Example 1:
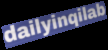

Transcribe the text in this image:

dailyinqilab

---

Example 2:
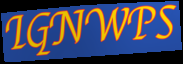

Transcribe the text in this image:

IGNWPS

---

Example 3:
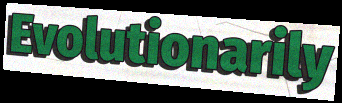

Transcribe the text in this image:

Evolutionarily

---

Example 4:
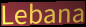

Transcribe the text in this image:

Lebana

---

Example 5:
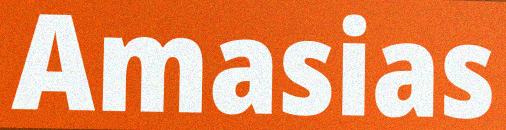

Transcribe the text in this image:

Amasias